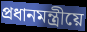
প্ৰধানমন্ত্ৰীয়ে